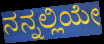
ನನ್ನಲ್ಲಿಯೇ